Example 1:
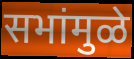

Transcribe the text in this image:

सभांमुळे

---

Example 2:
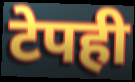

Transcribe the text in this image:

टेपही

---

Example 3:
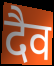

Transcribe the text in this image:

दैव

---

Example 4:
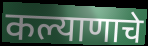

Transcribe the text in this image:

कल्याणाचे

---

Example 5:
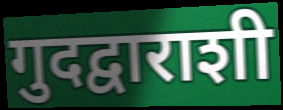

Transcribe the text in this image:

गुदद्वाराशी